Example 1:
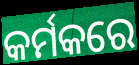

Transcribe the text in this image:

କର୍ମକରେ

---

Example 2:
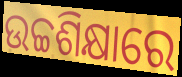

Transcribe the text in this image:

ଉଚ୍ଚଶିକ୍ଷାରେ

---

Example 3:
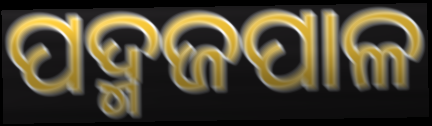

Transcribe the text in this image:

ପଦ୍ମଜପାଳ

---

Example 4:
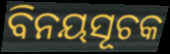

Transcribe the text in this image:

ବିନୟସୂଚକ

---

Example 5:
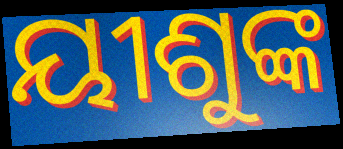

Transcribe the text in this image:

ୟୀଶୁଙ୍କ